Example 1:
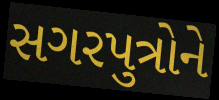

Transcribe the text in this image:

સગરપુત્રોને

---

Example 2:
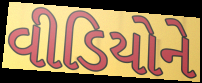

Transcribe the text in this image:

વીડિયોને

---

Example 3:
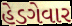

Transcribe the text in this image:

હેડગેવાર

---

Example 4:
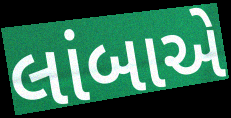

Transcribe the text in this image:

લાંબાએ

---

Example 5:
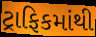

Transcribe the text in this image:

ટ્રાફિકમાંથી